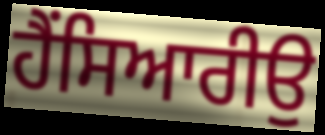
ਹੈਂਸਿਆਰੀਉ